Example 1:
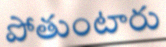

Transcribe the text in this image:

పోతుంటారు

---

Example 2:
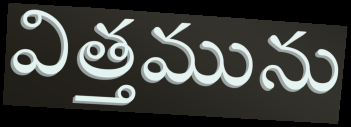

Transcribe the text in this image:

విత్తమును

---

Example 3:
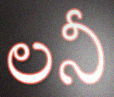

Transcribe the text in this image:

లనీ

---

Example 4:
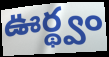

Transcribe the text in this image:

ఊర్థ్వం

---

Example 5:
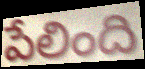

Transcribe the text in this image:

పేలింది